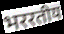
भररतीय